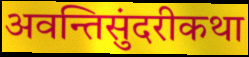
अवन्तिसुंदरीकथा